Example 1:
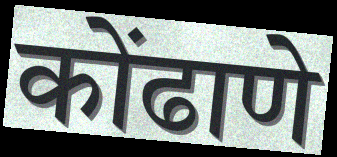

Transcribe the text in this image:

कोंढाणे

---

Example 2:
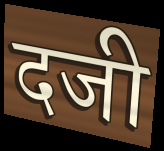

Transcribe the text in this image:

दजी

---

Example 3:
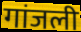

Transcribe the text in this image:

गांजली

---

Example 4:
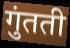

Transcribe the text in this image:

गुंतती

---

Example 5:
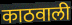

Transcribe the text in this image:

काठवाली